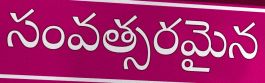
సంవత్సరమైన